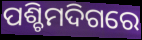
ପଶ୍ଚିମଦିଗରେ